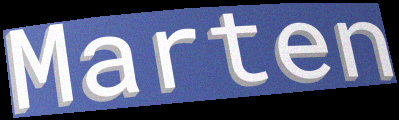
Marten